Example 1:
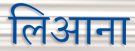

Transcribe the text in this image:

लिआना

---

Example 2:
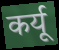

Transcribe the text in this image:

कर्यू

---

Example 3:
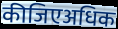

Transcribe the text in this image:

कीजिएअधिक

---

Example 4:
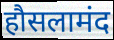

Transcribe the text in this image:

हौसलामंद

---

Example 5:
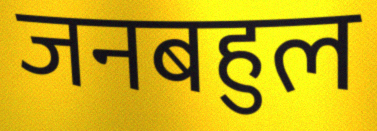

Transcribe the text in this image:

जनबहुल